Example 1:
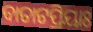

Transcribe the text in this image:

ବାତାଟପ୍ରିୟାଃ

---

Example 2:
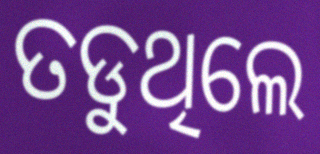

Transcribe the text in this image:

ତଡୁଥିଲେ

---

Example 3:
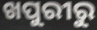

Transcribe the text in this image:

ଖପୁରୀରୁ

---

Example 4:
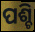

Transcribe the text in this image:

ପଶ୍ଚି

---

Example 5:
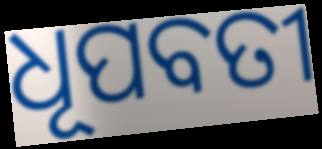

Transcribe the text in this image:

ଧୂପବତୀ